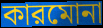
কারমোনা